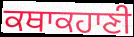
ਕਥਾਕਹਾਣੀ